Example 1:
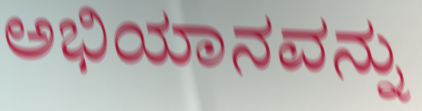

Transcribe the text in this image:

ಅಭಿಯಾನವನ್ನು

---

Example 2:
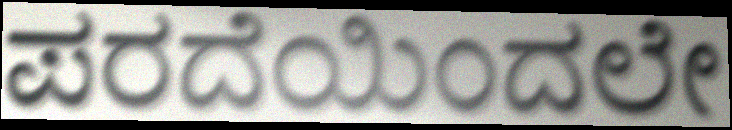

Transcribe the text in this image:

ಪರದೆಯಿಂದಲೇ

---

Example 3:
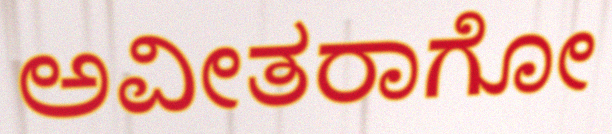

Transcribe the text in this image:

ಅವೀತರಾಗೋ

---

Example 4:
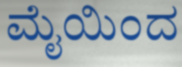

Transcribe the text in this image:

ಮೈಯಿಂದ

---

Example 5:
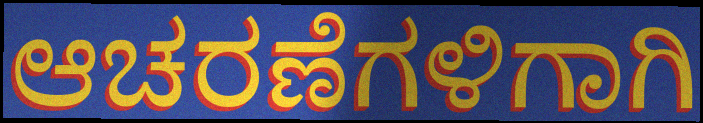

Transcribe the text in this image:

ಆಚರಣೆಗಳಿಗಾಗಿ